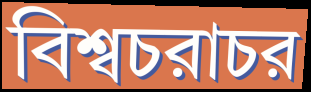
বিশ্বচরাচর